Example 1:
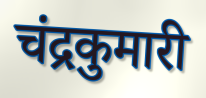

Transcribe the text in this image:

चंद्रकुमारी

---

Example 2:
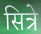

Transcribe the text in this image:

सित्रे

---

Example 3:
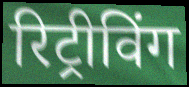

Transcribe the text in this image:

रिट्रीविंग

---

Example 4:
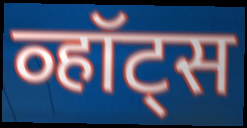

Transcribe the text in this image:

व्हॉट्स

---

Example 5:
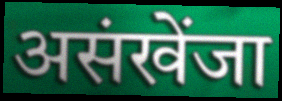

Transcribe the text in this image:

असंखेंजा